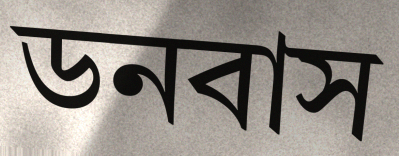
ডনবাস